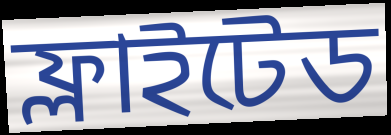
ফ্লাইটেড